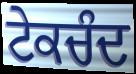
ਟੇਕਚੰਦ